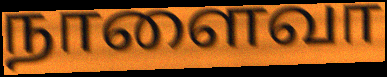
நாளைவா